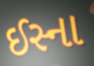
ઈસ્ના